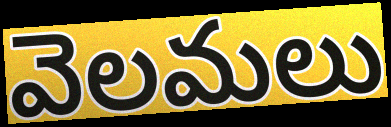
వెలమలు